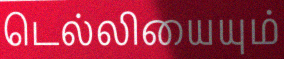
டெல்லியையும்